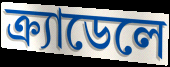
ক্র্যাডেলে